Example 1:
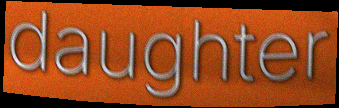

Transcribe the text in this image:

daughter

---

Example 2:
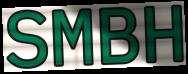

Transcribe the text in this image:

SMBH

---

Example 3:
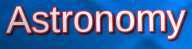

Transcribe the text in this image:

Astronomy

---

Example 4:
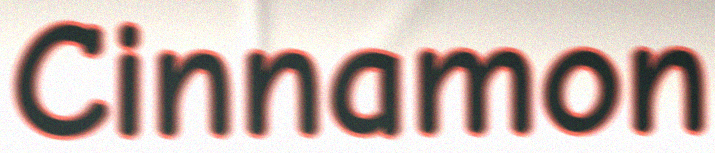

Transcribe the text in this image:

Cinnamon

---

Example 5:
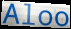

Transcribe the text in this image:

Aloo